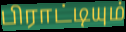
பிராட்டியும்